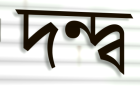
দন্দ্ব